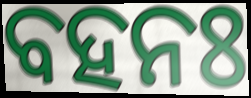
ବହନଃ